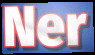
Ner